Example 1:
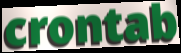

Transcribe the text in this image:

crontab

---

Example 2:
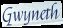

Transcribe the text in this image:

Gwyneth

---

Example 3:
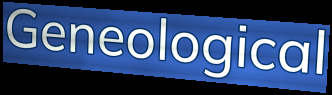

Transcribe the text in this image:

Geneological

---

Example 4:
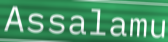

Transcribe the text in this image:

Assalamu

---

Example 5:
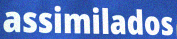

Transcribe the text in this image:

assimilados